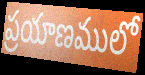
ప్రయాణములో